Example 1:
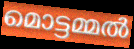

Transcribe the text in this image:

മൊട്ടമ്മൽ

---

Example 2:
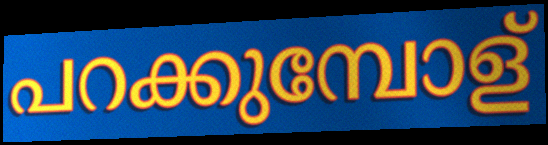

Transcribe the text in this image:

പറക്കുമ്പോള്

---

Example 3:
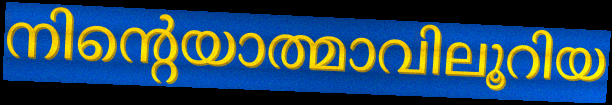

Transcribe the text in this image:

നിന്റെയാത്മാവിലൂറിയ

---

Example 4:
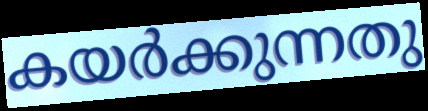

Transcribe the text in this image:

കയർക്കുന്നതു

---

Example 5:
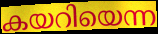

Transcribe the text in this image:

കയറിയെന്ന